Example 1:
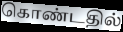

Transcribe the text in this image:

கொண்டதில்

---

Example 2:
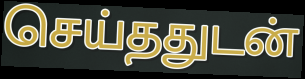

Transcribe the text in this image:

செய்ததுடன்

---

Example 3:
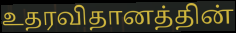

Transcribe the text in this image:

உதரவிதானத்தின்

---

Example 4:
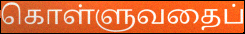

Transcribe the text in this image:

கொள்ளுவதைப்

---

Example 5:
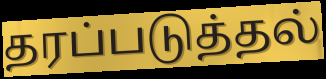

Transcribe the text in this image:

தரப்படுத்தல்